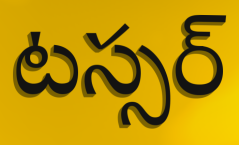
టస్సర్